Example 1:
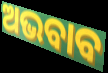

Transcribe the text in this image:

ଅଭବାବ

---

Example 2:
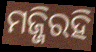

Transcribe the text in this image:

ମଜ୍ଜିରହି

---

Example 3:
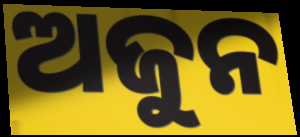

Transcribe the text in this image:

ଅଜୁନ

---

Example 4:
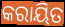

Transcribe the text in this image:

କରାୟିତ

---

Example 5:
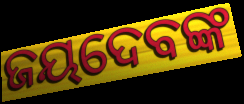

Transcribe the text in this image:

ଜୟଦେବଙ୍କ